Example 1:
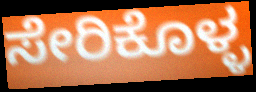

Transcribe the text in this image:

ಸೇರಿಕೊಳ್ಳ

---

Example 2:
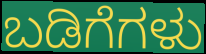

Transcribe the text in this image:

ಬಡಿಗೆಗಳು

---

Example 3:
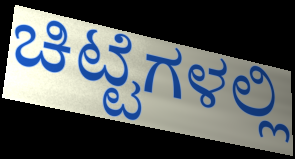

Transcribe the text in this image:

ಚಿಟ್ಟೆಗಳಲ್ಲಿ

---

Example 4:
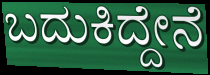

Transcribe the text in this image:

ಬದುಕಿದ್ದೇನೆ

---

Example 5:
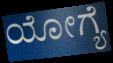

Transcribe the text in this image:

ಯೋಗ್ಯೆ